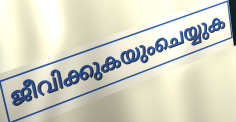
ജീവിക്കുകയുംചെയ്യുക